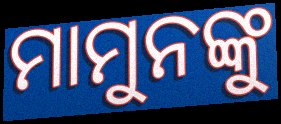
ମାମୁନଙ୍କୁ